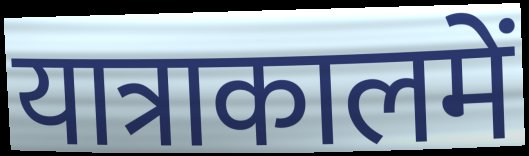
यात्राकालमें